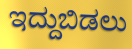
ಇದ್ದುಬಿಡಲು